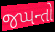
જપ્પન્તો